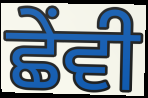
ਛੇੰਵੀ